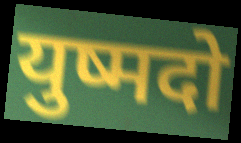
युष्मदो